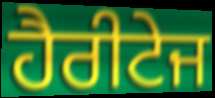
ਹੈਰੀਟੇਜ